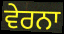
ਵੇਰਨਾ